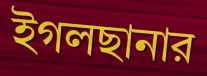
ইগলছানার